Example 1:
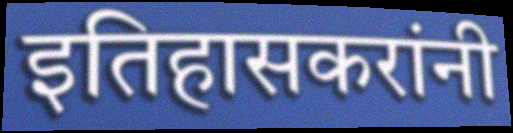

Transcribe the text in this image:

इतिहासकरांनी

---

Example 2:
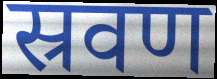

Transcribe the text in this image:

स्रवण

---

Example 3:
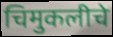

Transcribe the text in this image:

चिमुकलीचे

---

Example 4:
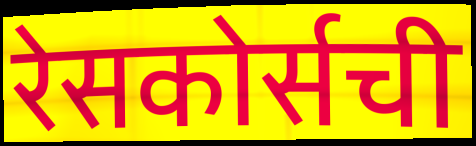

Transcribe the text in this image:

रेसकोर्सची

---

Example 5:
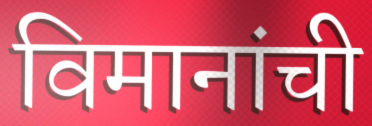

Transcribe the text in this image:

विमानांची